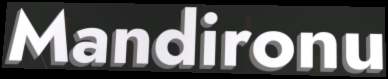
Mandironu